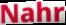
Nahr